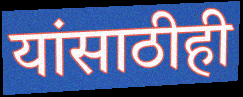
यांसाठीही